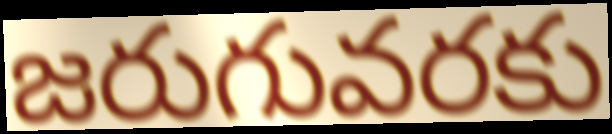
జరుగువరకు